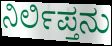
ನಿರ್ಲಿಪ್ತನು